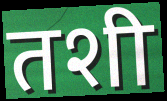
तशी